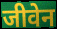
जीवेन